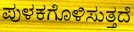
ಪುಳಕಗೊಳಿಸುತ್ತದೆ